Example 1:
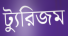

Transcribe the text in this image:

ট্যুরিজম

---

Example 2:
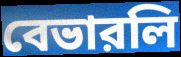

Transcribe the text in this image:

বেভারলি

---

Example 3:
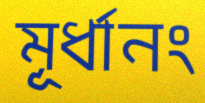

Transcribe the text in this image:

মূর্ধানং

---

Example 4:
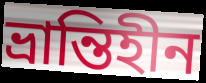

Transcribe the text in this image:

ভ্রান্তিহীন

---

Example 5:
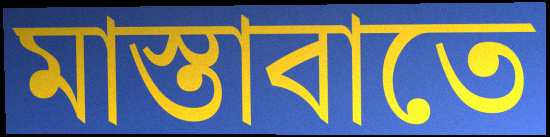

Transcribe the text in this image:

মাস্তাবাতে